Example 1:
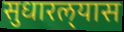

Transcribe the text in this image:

सुधारल्यास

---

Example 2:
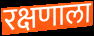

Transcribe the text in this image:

रक्षणाला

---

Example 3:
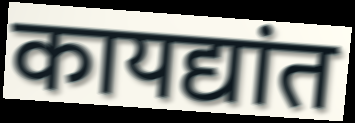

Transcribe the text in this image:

कायद्यांत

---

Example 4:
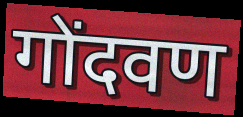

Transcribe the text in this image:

गोंदवण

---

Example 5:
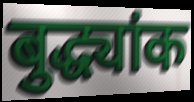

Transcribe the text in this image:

बुद्ध्यांक